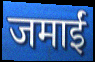
जमाईं